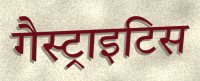
गैस्ट्राइटिस